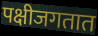
पक्षीजगतात